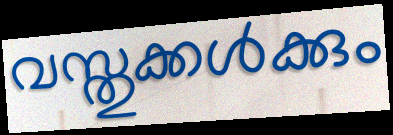
വസ്തുക്കൾക്കും